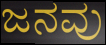
ಜನವು